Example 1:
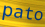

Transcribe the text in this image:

pato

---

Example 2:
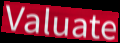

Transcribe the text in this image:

Valuate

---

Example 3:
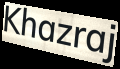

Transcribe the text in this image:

Khazraj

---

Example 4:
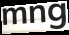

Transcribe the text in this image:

mng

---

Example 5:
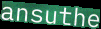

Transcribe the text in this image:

ansuthe